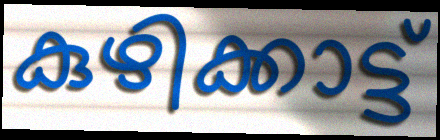
കുഴിക്കാട്ട്